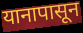
यानापासून